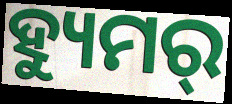
ହ୍ୟୁମର୍